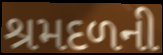
શ્રમદળની